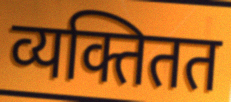
व्यक्तितत